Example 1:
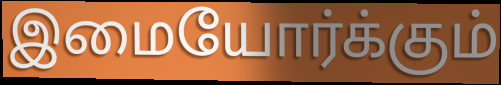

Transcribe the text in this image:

இமையோர்க்கும்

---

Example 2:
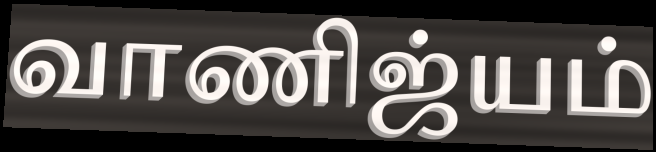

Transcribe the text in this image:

வாணிஜ்யம்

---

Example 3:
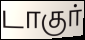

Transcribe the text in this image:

டாகுர்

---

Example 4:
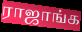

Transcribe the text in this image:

ராஜாங்க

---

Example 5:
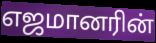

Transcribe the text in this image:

எஜமானரின்